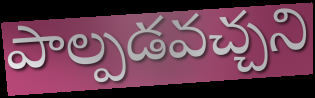
పాల్పడవచ్చని